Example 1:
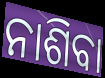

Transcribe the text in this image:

ନାଶିବା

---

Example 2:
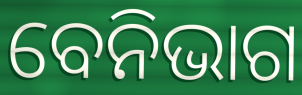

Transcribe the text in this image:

ବେନିଭାଗ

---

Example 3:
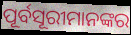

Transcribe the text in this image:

ପୂର୍ବସୂରୀମାନଙ୍କର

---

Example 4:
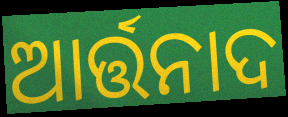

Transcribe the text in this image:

ଆର୍ତ୍ତନାଦ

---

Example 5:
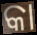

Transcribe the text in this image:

କା